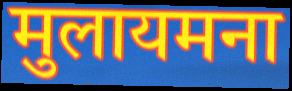
मुलायमना